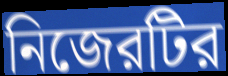
নিজেরটির